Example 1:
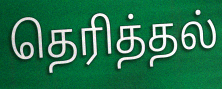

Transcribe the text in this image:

தெரித்தல்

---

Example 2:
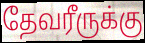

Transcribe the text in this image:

தேவரீருக்கு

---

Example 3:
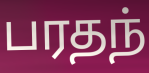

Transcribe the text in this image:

பரதந்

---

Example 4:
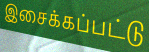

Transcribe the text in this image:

இசைக்கப்பட்டு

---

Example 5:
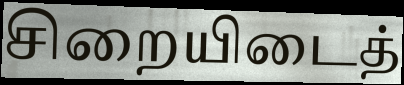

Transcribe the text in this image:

சிறையிடைத்